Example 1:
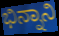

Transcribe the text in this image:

ಭಿನ್ನಾನಿ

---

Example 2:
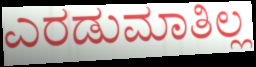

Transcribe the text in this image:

ಎರಡುಮಾತಿಲ್ಲ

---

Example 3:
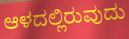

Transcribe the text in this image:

ಆಳದಲ್ಲಿರುವುದು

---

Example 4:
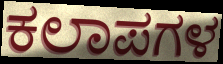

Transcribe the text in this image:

ಕಲಾಪಗಳ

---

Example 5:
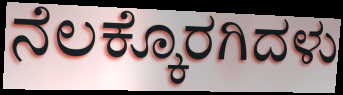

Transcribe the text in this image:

ನೆಲಕ್ಕೊರಗಿದಳು